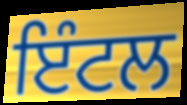
ਇੰਟਲ